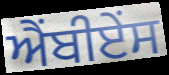
ਐਂਬੀਏਂਸ